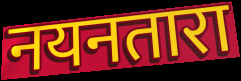
नयनतारा